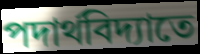
পদার্থবিদ্যাতে